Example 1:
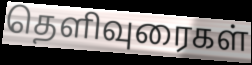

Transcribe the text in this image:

தெளிவுரைகள்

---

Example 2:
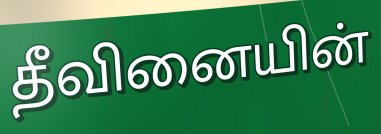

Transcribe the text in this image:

தீவினையின்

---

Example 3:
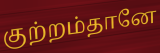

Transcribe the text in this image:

குற்றம்தானே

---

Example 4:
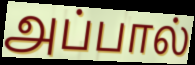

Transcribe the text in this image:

அப்பால்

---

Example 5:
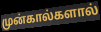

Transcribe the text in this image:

முன்கால்களால்